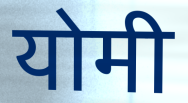
योमी